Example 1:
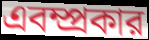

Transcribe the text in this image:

এবম্প্রকার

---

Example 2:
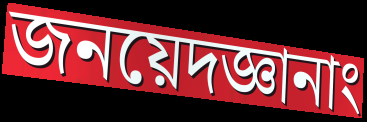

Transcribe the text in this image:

জনয়েদজ্ঞানাং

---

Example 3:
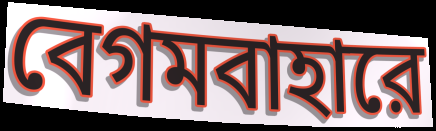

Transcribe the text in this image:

বেগমবাহারে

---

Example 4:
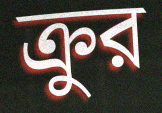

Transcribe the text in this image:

ক্রুর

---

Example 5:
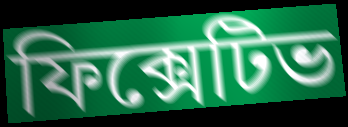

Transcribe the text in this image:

ফিক্সেটিভ